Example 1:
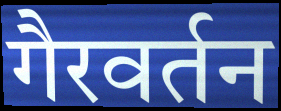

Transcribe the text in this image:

गैरवर्तन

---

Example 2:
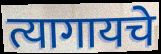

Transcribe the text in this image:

त्यागायचे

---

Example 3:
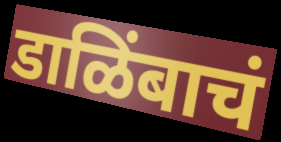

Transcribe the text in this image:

डाळिंबाचं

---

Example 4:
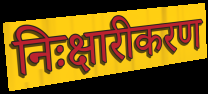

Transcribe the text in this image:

निःक्षारीकरण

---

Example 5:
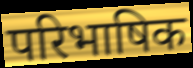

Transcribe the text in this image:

परिभाषिक